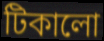
টিকালো